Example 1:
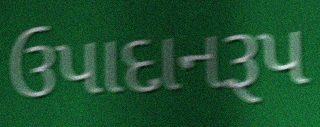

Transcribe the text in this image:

ઉપાદાનરૂપ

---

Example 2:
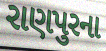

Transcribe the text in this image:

રાણપુરના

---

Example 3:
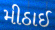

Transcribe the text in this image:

મીઠાઈ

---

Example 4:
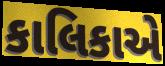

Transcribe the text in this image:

કાલિકાએ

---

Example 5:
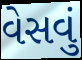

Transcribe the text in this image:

વેસવું